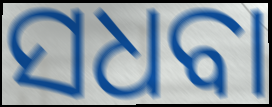
ସଧବା